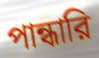
পান্ধারি